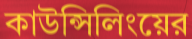
কাউন্সিলিংয়ের